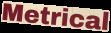
Metrical